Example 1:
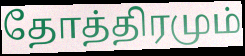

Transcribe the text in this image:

தோத்திரமும்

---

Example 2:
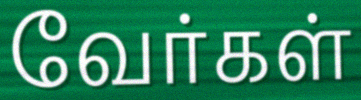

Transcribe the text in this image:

வேர்கள்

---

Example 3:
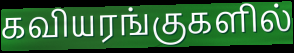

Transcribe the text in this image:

கவியரங்குகளில்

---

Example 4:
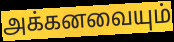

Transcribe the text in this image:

அக்கனவையும்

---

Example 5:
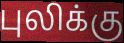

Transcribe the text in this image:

புலிக்கு